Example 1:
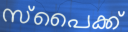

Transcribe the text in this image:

സ്പൈക്ക്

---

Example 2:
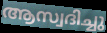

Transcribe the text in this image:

ആസ്വദിച്ചു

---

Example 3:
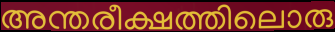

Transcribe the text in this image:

അന്തരീക്ഷത്തിലൊരു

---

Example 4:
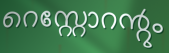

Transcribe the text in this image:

റെസ്റ്റോറന്റും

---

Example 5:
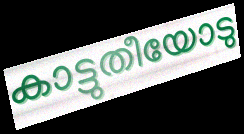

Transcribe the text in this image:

കാട്ടുതീയോടു